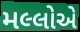
મલ્લોએ